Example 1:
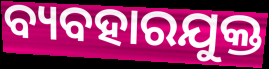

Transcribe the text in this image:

ବ୍ୟବହାରଯୁକ୍ତ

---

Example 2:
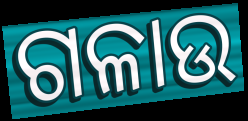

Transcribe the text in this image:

ଗଳାଉ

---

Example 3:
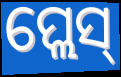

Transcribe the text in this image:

ପ୍ଲେସ୍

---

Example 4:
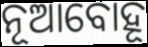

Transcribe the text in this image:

ନୂଆବୋହୂ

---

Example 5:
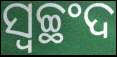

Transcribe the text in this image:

ସ୍ୱଚ୍ଛଂଦ